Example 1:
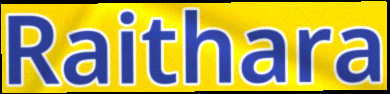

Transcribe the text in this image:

Raithara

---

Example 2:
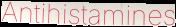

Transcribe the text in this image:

Antihistamines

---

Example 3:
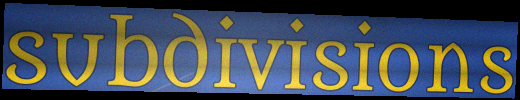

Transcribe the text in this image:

subdivisions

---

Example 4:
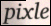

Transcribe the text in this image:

pixle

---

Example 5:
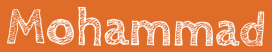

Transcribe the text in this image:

Mohammad